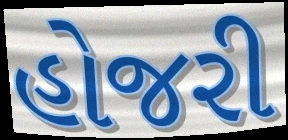
હોજરી